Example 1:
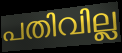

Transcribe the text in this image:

പതിവില്ല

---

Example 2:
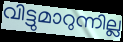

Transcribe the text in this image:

വിട്ടുമാറുന്നില്ല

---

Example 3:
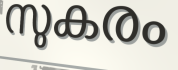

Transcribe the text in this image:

സുകരം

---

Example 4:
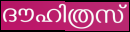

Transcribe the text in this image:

ദൗഹിത്രസ്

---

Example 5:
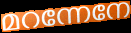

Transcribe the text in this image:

മറന്നേനേ